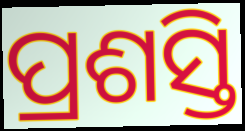
ପ୍ରଶସ୍ତି